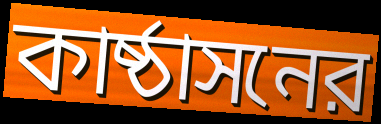
কাষ্ঠাসনের